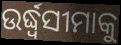
ଉର୍ଦ୍ଧ୍ୱସୀମାକୁ